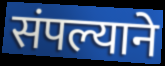
संपल्याने